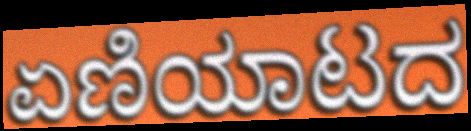
ಏಣಿಯಾಟದ